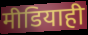
मीडियाही